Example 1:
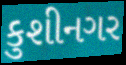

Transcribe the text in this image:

કુશીનગર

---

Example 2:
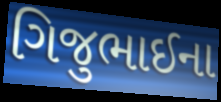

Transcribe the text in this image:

ગિજુભાઈના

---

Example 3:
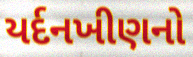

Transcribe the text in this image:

યર્દનખીણનો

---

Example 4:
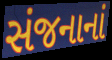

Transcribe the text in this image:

સંજનાનાં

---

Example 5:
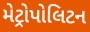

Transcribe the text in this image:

મેટ્રોપોલિટન